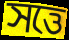
সত্তে